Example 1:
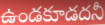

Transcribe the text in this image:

ఉండకూడదనీ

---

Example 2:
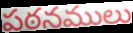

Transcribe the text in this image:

పఠనములు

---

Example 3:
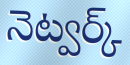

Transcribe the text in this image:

నెట్వర్క్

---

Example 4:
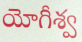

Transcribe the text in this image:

యోగీశ్వ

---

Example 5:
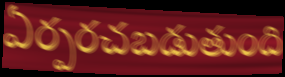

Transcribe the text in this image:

ఏర్పరచబడుతుంది